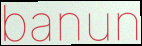
banun